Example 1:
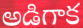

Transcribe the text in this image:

అడిగాక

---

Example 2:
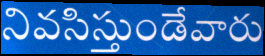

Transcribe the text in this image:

నివసిస్తుండేవారు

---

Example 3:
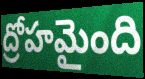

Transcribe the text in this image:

ద్రోహమైంది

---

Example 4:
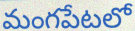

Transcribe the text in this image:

మంగపేటలో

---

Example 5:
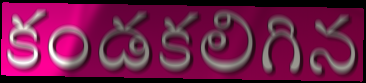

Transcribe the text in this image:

కండకలిగిన